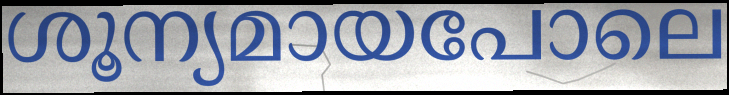
ശൂന്യമായപോലെ